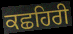
ਕਛਹਿਰੀ